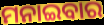
ମନାଇବାର